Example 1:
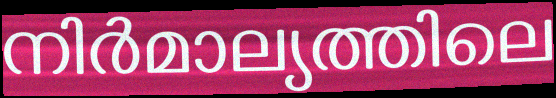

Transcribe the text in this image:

നിർമാല്യത്തിലെ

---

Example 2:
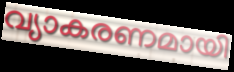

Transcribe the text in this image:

വ്യാകരണമായി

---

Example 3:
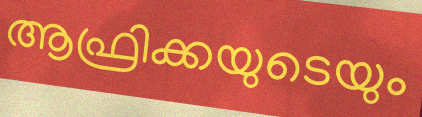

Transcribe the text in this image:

ആഫ്രിക്കയുടെയും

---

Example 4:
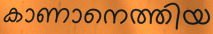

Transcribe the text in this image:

കാണാനെത്തിയ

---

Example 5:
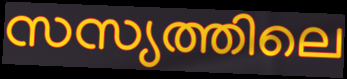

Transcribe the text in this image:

സസ്യത്തിലെ